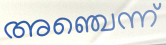
അഞ്ചെന്ന്